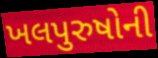
ખલપુરુષોની